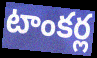
టాంకర్ల